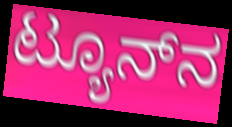
ಟ್ಯೂನ್‌ನ